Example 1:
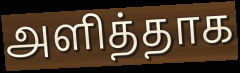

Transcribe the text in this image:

அளித்தாக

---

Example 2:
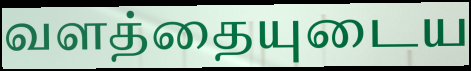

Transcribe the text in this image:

வளத்தையுடைய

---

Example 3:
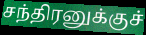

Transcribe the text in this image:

சந்திரனுக்குச்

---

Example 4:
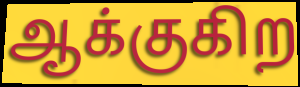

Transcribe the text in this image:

ஆக்குகிற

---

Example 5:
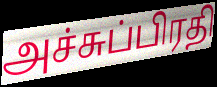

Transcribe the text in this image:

அச்சுப்பிரதி